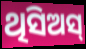
ଥିସିଅସ୍